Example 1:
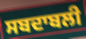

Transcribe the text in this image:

ਸਬਦਾਬਲੀ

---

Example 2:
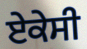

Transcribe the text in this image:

ਏਕੇਸੀ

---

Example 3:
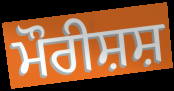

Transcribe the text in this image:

ਮੌਰੀਸ਼ਸ਼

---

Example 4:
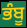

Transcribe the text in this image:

ਭੰਬੂ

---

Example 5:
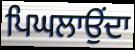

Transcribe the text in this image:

ਪਿਘਲਾਉਂਦਾ